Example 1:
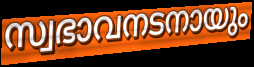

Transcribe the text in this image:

സ്വഭാവനടനായും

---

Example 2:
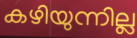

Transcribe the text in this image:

കഴിയുന്നില്ല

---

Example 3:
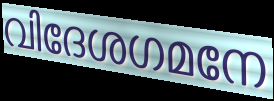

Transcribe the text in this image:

വിദേശഗമനേ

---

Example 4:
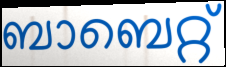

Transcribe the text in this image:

ബാബെറ്റ്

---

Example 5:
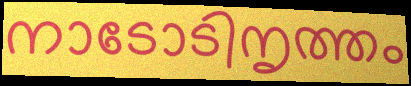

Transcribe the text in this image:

നാടോടിനൃത്തം